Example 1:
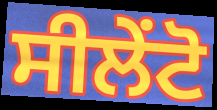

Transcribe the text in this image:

ਸੀਲੇਂਟੋ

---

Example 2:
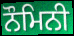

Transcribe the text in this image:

ਨੌਮਿਨੀ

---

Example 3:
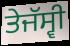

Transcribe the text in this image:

ਤੇਜੱਸ੍ਵੀ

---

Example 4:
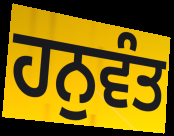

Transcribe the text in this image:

ਹਨੁਵੰਤ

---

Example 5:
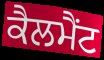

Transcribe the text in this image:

ਕੈਲਮੈਂਟ